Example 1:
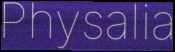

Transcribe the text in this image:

Physalia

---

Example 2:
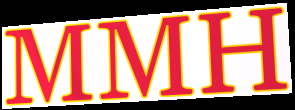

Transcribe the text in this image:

MMH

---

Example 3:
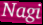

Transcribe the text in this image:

Nagi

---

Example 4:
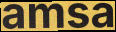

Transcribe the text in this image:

amsa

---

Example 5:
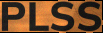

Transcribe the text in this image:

PLSS